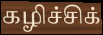
கழிச்சிக்